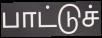
பாட்டுச்